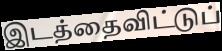
இடத்தைவிட்டுப்